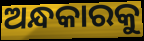
ଅନ୍ଧକାରକୁ